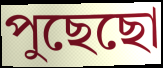
পুছেছো